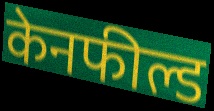
केनफील्ड